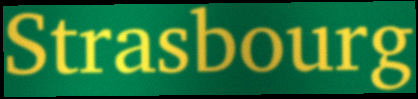
Strasbourg